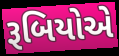
રૂબિયોએ